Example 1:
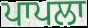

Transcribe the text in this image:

ਪਾਪਲਾ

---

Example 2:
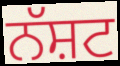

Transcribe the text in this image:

ਨੱਸ਼ਟ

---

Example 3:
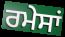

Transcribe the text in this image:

ਰਮੇਸਾਂ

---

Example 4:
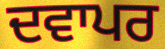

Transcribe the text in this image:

ਦਵਾਪਰ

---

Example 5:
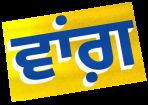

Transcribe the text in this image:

ਵਾਂਗ਼